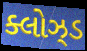
ક્લોઝ્ડ